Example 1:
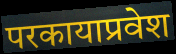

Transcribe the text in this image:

परकायाप्रवेश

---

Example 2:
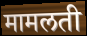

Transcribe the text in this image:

मामलती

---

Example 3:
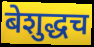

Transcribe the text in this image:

बेशुद्धच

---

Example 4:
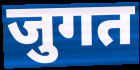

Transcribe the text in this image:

जुगत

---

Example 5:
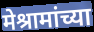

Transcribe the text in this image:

मेश्रामांच्या